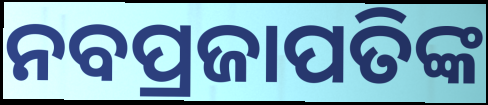
ନବପ୍ରଜାପତିଙ୍କ